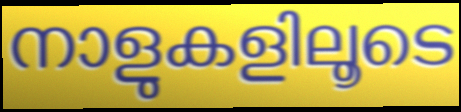
നാളുകളിലൂടെ